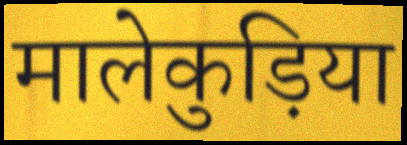
मालेकुड़िया